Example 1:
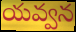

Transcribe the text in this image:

యవ్వన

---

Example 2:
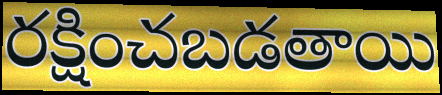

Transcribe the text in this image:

రక్షించబడతాయి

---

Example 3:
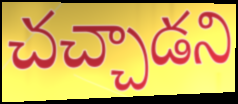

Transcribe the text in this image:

చచ్చాడని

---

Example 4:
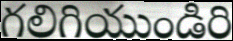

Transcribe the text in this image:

గలిగియుండిరి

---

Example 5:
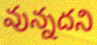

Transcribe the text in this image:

వున్నదని